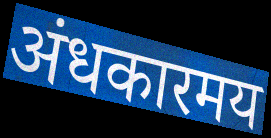
अंधकारमय